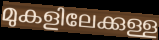
മുകളിലേക്കുള്ള